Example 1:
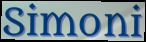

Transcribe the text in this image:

Simoni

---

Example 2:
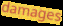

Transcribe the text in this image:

damages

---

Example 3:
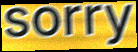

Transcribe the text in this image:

sorry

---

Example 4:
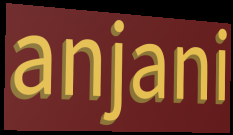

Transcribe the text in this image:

anjani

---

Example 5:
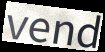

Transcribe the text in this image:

vend